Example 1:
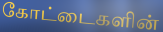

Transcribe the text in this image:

கோட்டைகளின்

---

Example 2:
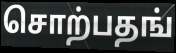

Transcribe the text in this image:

சொற்பதங்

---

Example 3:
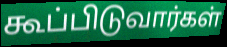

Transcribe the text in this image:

கூப்பிடுவார்கள்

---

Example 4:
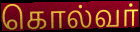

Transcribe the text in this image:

கொல்வர்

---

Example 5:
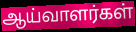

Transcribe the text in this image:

ஆய்வாளர்கள்